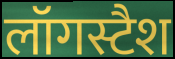
लॉगस्टैश